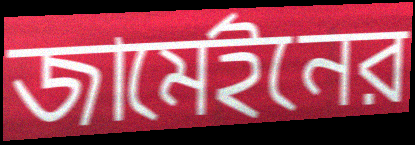
জার্মেইনের